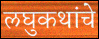
लघुकथांचे